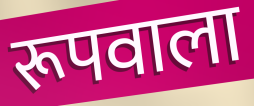
रूपवाला